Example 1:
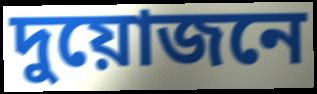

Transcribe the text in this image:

দুয়োজনে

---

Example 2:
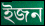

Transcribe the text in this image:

ইজন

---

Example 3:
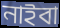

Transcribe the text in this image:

নাইবা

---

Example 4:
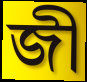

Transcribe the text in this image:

জী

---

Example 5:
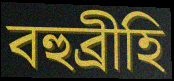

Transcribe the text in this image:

বহুব্ৰীহি